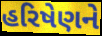
હરિષેણને